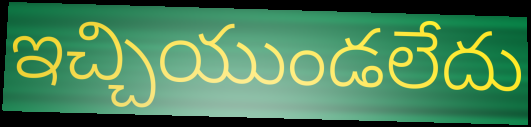
ఇచ్చియుండలేదు